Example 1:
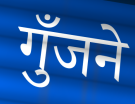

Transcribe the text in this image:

गुँजने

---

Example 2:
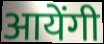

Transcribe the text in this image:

आयेंगी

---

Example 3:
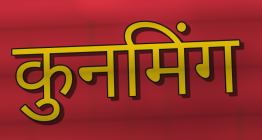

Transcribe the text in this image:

कुनमिंग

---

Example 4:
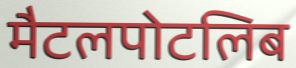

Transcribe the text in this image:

मैटलपोटलिब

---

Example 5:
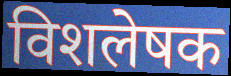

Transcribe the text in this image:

विशलेषक